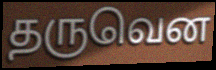
தருவென